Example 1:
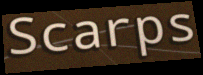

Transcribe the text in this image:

Scarps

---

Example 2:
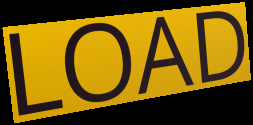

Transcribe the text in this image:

LOAD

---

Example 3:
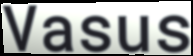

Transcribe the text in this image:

Vasus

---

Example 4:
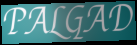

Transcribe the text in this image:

PALGAD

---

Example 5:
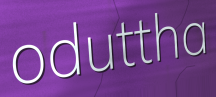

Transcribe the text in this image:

oduttha